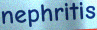
nephritis